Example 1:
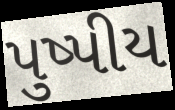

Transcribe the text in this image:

પુષ્પીય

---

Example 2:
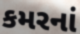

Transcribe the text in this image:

કમરનાં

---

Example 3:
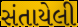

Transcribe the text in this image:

સંતાયેલી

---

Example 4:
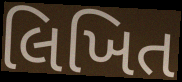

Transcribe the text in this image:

લિખિત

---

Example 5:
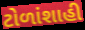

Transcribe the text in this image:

ટોળાંશાહી